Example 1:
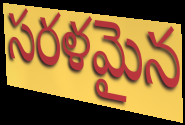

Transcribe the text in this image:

సరళమైన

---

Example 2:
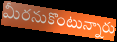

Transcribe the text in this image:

మీరనుకొంటున్నారు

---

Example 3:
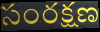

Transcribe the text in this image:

సంరక్షణ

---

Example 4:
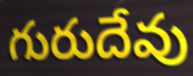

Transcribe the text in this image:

గురుదేవు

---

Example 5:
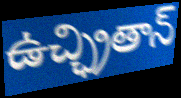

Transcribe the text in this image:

ఉచ్ఛ్రితాన్